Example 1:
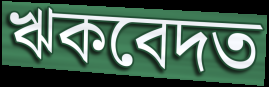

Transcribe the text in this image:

ঋকবেদত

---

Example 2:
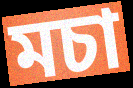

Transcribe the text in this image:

মচা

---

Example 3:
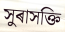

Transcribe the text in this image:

সুৰাসক্তি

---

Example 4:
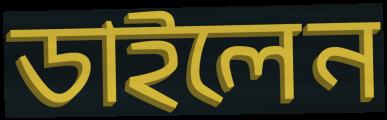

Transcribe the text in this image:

ডাইলেন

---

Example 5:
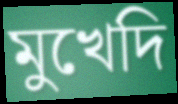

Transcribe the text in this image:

মুখেদি